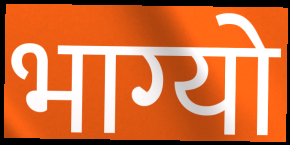
भाग्यो